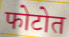
फोटोत